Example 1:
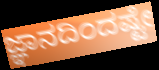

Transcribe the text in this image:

ಜ್ಞಾನದಿಂದಷ್ಟೇ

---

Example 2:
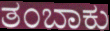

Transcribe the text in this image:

ತಂಬಾಕು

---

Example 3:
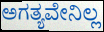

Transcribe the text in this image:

ಅಗತ್ಯವೇನಿಲ್ಲ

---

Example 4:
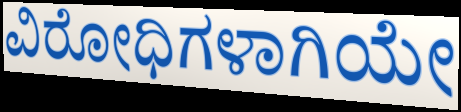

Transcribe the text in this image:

ವಿರೋಧಿಗಳಾಗಿಯೇ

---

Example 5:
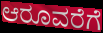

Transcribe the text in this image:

ಆರೂವರೆಗೆ